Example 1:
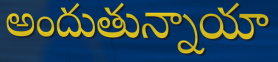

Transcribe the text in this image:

అందుతున్నాయా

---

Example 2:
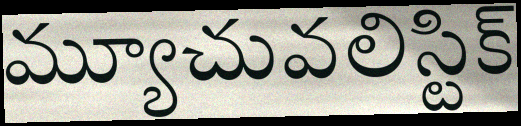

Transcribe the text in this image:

మ్యూచువలిస్టిక్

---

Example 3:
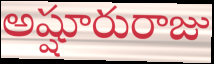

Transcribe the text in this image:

అష్షూరురాజు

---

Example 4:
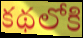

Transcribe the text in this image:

కథలోకి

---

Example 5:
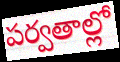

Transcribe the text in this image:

పర్వతాల్లో